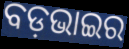
ବଡ଼ଭାଇର